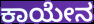
ಕಾಯೇನ